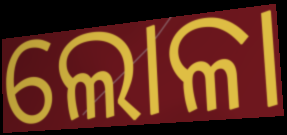
ଲୋଳା